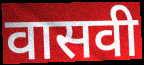
वासवी